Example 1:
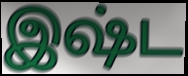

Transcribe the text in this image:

இஷ்ட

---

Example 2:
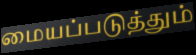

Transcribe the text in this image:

மையப்படுத்தும்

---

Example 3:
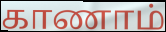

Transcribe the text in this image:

காணாம்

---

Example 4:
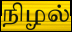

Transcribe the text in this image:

நிழல்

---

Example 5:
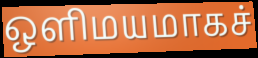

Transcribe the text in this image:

ஒளிமயமாகச்